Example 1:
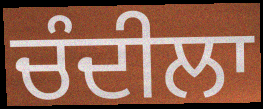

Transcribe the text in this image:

ਚੰਦੀਲਾ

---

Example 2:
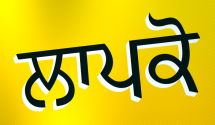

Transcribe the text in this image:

ਲਾਪਕੋ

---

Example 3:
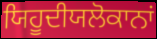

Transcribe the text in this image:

ਯਿਹੂਦੀਯਲੋਕਾਨਾਂ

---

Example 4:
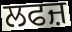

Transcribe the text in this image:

ਲਫਜ਼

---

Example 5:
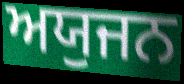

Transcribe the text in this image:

ਅਯੁਜਨ